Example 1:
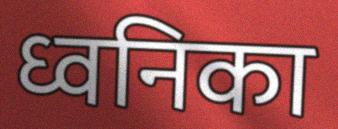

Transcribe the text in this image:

ध्वनिका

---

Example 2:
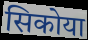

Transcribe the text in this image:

सिकोया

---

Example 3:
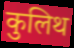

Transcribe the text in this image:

कुलिथ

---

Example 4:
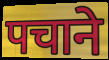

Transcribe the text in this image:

पचाने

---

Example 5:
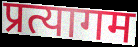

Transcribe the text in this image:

प्रत्यागम